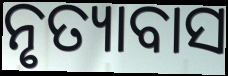
ନୃତ୍ୟାବାସ